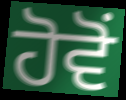
ਹੋਵੋਂ